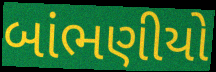
બાંભણીયો